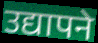
उद्यापने